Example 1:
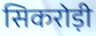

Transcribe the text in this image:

सिकरोड़ी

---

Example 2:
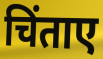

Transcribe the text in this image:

चिंताए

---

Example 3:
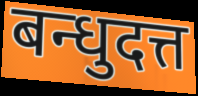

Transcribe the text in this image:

बन्धुदत्त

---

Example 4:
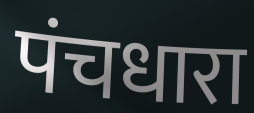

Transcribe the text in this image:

पंचधारा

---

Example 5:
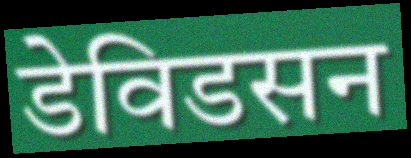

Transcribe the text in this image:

डेविडसन